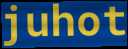
juhot